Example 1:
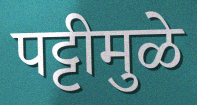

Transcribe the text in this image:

पट्टीमुळे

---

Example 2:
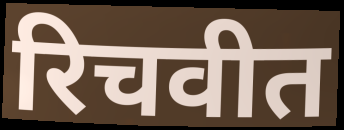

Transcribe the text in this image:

रिचवीत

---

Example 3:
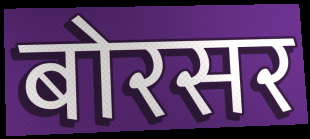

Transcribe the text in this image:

बोरसर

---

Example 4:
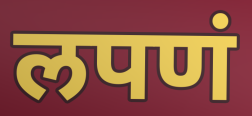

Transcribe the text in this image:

लपणं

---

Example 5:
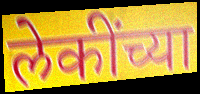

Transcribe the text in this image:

लेकींच्या